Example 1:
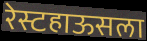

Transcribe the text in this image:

रेस्टहाऊसला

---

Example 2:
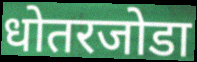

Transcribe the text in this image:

धोतरजोडा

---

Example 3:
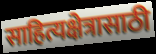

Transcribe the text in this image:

साहित्यक्षेत्रासाठी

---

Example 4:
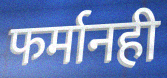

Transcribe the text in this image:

फर्मानही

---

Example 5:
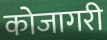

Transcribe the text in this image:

कोजागरी